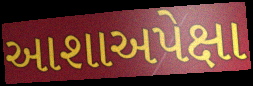
આશાઅપેક્ષા